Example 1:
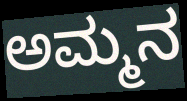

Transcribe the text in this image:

ಅಮ್ಮನ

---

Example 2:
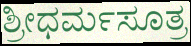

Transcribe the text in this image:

ಶ್ರೀಧರ್ಮಸೂತ್ರ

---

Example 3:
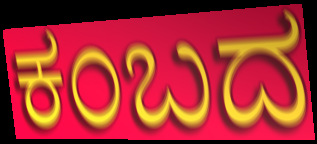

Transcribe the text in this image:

ಕಂಬದ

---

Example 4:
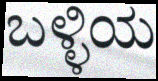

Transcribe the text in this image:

ಬಳ್ಳಿಯ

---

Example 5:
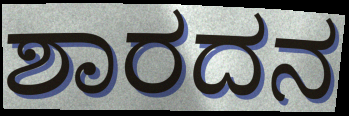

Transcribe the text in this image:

ಶಾರದನ